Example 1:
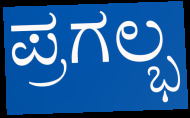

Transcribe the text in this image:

ಪ್ರಗಲ್ಭ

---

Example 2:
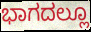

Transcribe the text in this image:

ಭಾಗದಲ್ಲೂ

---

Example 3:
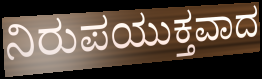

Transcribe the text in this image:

ನಿರುಪಯುಕ್ತವಾದ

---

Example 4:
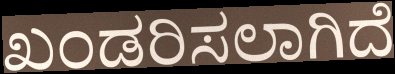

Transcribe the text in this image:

ಖಂಡರಿಸಲಾಗಿದೆ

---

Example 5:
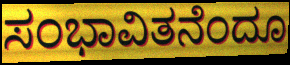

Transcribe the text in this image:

ಸಂಭಾವಿತನೆಂದೂ